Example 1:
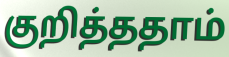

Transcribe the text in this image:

குறித்ததாம்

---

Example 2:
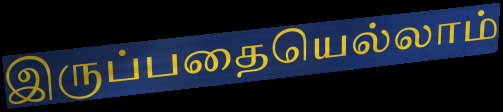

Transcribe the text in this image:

இருப்பதையெல்லாம்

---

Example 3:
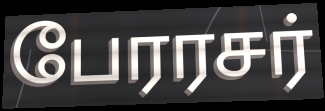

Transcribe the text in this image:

பேரரசர்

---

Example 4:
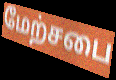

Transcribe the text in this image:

மேற்சபை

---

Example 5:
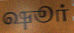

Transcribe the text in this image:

ஷூர்